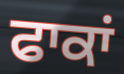
ਫਾਕਾਂ